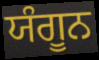
ਯੰਗੂਨ